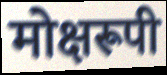
मोक्षरूपी